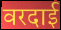
वरदाई